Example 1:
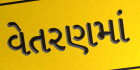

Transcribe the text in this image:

વેતરણમાં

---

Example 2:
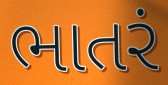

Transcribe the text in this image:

ભાતરં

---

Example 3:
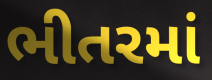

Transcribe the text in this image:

ભીતરમાં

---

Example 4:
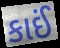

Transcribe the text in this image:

કાઈં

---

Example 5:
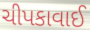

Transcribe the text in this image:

ચીપકાવાઈ